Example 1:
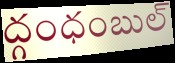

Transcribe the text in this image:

ద్గంధంబుల్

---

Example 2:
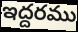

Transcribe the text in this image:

ఇద్దరము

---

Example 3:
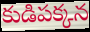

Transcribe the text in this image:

కుడిపక్కన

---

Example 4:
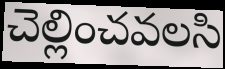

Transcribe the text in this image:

చెల్లించవలసి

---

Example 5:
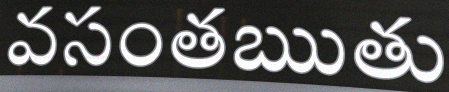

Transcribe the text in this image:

వసంతఋతు